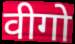
वीगो